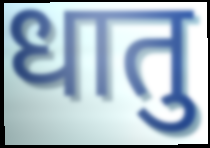
धातु